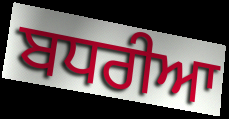
ਬਧਰੀਆ